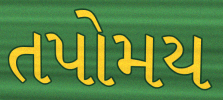
તપોમય